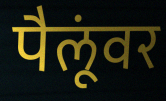
पैलूंवर